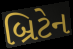
બ્રિટેન